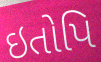
ઇતોપિ